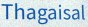
Thagaisal